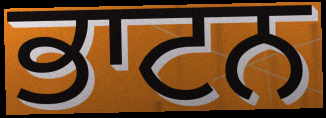
ਭਾਟਨ